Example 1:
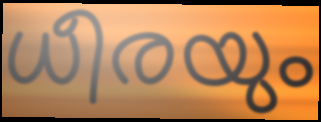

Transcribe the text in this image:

ധീരയും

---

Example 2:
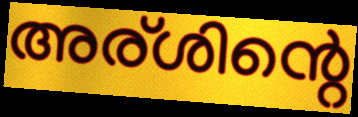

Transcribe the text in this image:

അര്ശിന്റെ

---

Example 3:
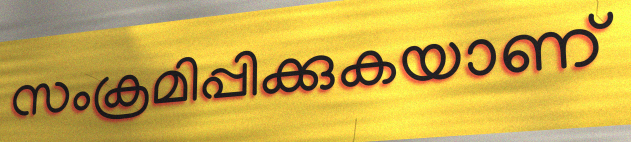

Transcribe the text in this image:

സംക്രമിപ്പിക്കുകയാണ്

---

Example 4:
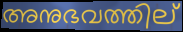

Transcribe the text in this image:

അനുഭവത്തില്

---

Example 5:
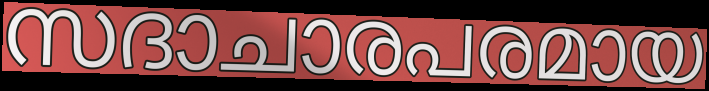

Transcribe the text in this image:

സദാചാരപരമായ